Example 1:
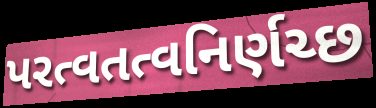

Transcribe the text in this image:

પરત્વતત્વનિર્ણચ્છ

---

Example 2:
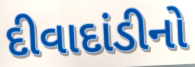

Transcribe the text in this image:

દીવાદાંડીનો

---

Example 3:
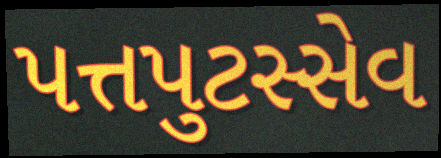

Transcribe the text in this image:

પત્તપુટસ્સેવ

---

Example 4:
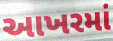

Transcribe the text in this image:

આખરમાં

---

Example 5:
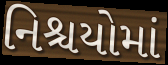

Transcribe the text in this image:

નિશ્ચયોમાં